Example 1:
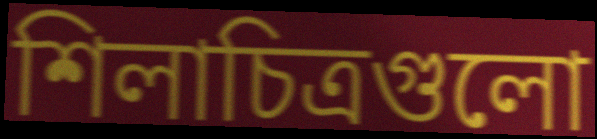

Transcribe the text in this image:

শিলাচিত্রগুলো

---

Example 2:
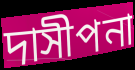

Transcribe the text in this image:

দাসীপনা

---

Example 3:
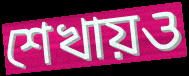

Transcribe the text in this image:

শেখায়ও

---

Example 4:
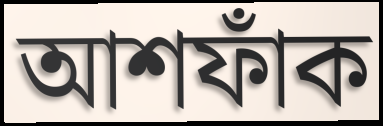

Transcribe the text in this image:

আশফাঁক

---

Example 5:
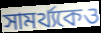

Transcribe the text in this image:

সামর্থ্যকেও